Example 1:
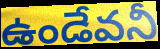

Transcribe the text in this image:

ఉండేవనీ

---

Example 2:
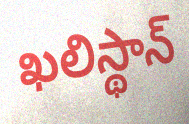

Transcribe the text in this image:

ఖలిస్థాన్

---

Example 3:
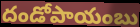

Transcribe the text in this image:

దండోపాయంబు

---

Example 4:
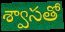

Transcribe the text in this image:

శ్వాసతో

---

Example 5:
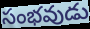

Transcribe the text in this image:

సంభవుడు